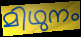
മിഥുനം